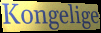
Kongelige